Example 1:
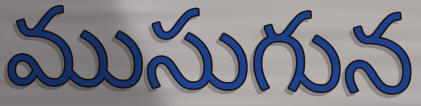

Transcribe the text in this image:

ముసుగున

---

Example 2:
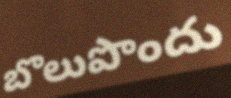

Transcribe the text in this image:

బొలుపొందు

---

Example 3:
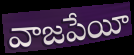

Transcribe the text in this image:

వాజపేయీ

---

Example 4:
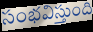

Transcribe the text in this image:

సంభవిస్తుంది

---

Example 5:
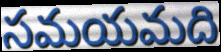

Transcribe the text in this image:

సమయమది